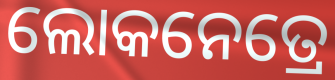
ଲୋକନେତ୍ରେ